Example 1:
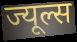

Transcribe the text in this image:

ज्यूल्स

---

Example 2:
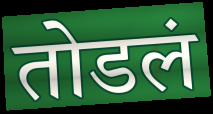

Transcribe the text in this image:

तोडलं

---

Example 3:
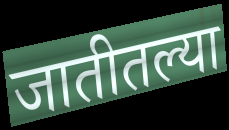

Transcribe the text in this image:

जातीतल्या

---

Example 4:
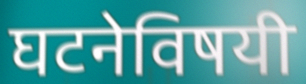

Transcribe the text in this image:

घटनेविषयी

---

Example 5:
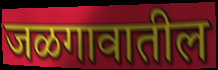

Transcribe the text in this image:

जळगावातील